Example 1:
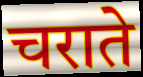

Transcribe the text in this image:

चराते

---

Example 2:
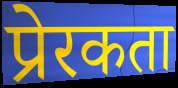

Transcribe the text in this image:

प्रेरकता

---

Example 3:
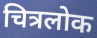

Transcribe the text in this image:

चित्रलोक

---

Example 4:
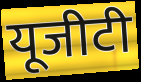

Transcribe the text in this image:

यूजीटी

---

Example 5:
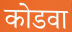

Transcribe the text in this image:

कोडवा